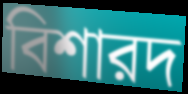
বিশারদ